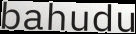
bahudu